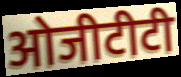
ओजीटीटी